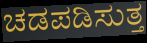
ಚಡಪಡಿಸುತ್ತ